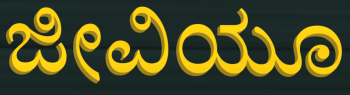
ಜೀವಿಯೂ